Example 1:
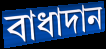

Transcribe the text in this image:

বাধাদান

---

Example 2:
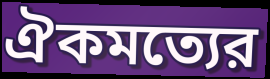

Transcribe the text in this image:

ঐকমত্যের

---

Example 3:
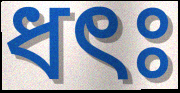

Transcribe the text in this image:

ধৎঃ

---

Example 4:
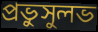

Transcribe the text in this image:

প্রভুসুলভ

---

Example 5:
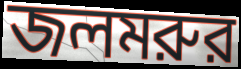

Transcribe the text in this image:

জলমরুর